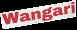
Wangari